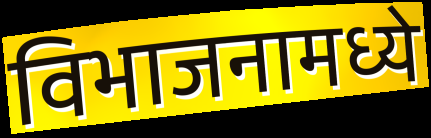
विभाजनामध्ये